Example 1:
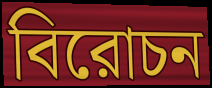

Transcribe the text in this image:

বিরোচন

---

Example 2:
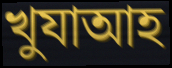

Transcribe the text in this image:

খুযাআহ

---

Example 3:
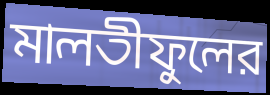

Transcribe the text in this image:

মালতীফুলের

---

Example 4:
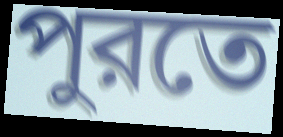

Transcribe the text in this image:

পুরতে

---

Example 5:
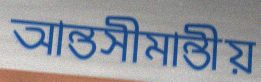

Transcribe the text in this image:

আন্তসীমান্তীয়